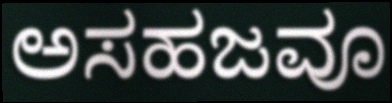
ಅಸಹಜವೂ